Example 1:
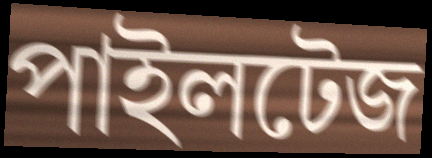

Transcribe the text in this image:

পাইলটেজ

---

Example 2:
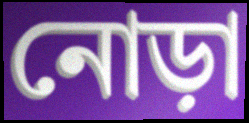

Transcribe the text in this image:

নোড়া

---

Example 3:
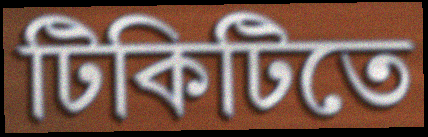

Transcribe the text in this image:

টিকিটিতে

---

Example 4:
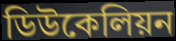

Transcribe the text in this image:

ডিউকেলিয়ন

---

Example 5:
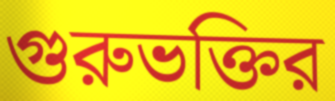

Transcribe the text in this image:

গুরুভক্তির